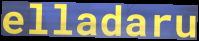
elladaru